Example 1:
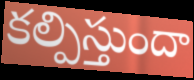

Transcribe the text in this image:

కల్పిస్తుందా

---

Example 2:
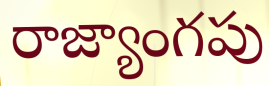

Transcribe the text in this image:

రాజ్యాంగపు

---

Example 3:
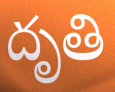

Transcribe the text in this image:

దృతి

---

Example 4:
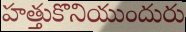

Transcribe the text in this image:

హత్తుకొనియుందురు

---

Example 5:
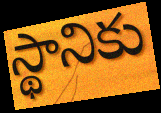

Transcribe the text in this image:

స్థానికు